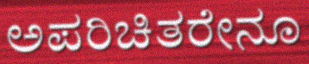
ಅಪರಿಚಿತರೇನೂ